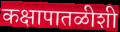
कक्षापातळीशी